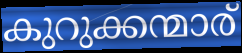
കുറുക്കന്മാര്